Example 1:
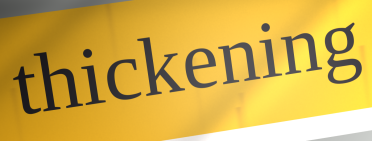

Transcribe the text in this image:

thickening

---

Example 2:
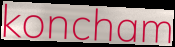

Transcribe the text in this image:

koncham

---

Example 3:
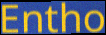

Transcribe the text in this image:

Entho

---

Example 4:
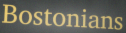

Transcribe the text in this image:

Bostonians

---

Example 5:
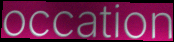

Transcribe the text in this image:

occation